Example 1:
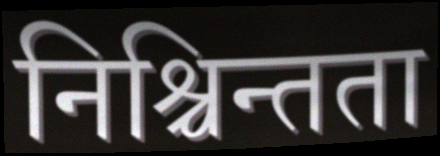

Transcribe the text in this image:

निश्चिन्तता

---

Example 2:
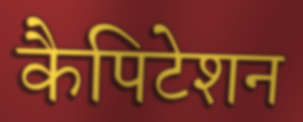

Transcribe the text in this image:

कैपिटेशन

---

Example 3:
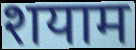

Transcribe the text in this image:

शयाम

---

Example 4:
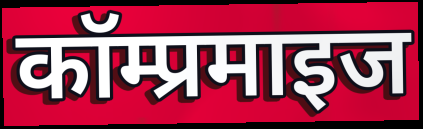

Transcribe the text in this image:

कॉम्प्रमाइज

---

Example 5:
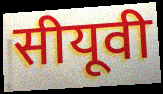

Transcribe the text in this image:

सीयूवी